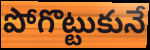
పోగొట్టుకునే